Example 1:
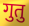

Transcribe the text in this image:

गुतु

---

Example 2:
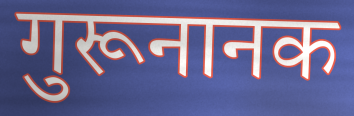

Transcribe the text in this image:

गुरूनानक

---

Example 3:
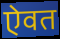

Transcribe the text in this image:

ऐवत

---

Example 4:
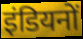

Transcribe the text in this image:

इंडियनों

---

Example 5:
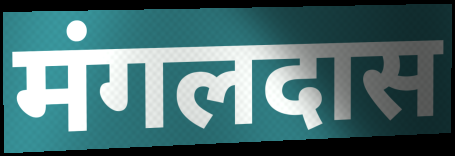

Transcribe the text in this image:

मंगलदास